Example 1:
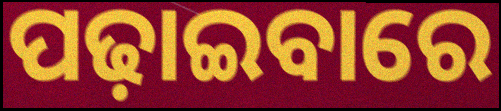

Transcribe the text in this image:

ପଢ଼ାଇବାରେ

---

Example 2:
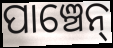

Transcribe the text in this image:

ପାଞ୍ଚେନ୍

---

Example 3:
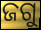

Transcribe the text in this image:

ଜଗୁ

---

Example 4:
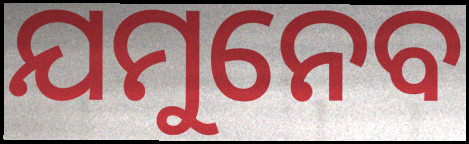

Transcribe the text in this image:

ଯମୁନେବ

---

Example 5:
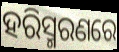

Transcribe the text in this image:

ହରିସ୍ମରଣରେ